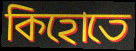
কিহোতে